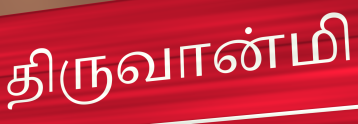
திருவான்மி